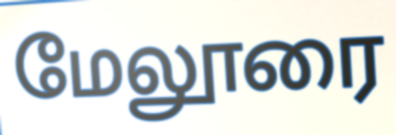
மேலூரை